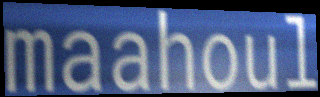
maahoul